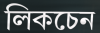
লিকচেন